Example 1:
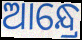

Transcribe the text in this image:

ଆନ୍ଧ୍ରେ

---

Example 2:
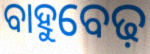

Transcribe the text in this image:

ବାହୁବେଢ଼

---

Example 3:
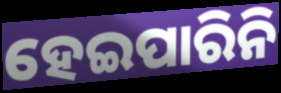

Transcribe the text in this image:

ହେଇପାରିନି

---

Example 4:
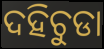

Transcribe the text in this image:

ଦହିଚୁଡା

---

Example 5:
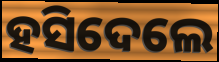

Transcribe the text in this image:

ହସିଦେଲେ